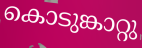
കൊടുങ്കാറ്റു